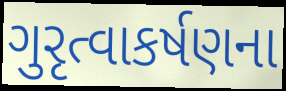
ગુરૃત્વાકર્ષણના